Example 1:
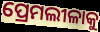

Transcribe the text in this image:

ପ୍ରେମଲୀଳାକୁ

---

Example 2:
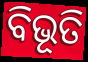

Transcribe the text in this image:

ବିଭୂତି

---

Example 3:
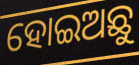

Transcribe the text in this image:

ହୋଇଅଛୁ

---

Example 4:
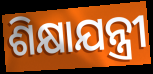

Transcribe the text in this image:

ଶିକ୍ଷାଯନ୍ତ୍ରୀ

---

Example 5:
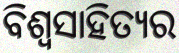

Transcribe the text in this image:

ବିଶ୍ଵସାହିତ୍ୟର